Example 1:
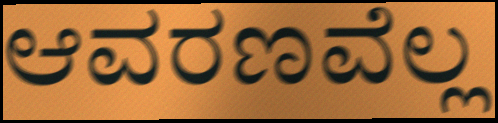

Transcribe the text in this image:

ಆವರಣವೆಲ್ಲ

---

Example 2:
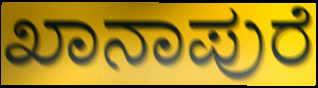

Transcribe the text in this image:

ಖಾನಾಪುರೆ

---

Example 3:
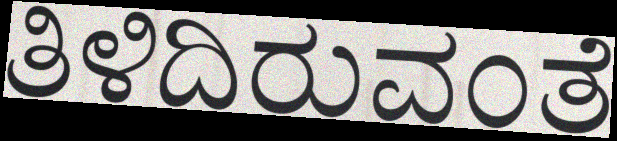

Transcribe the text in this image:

ತಿಳಿದಿರುವಂತೆ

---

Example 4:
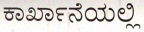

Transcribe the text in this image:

ಕಾರ್ಖಾನೆಯಲ್ಲಿ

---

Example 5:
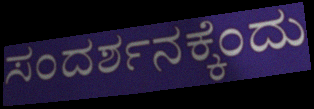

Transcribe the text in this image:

ಸಂದರ್ಶನಕ್ಕೆಂದು